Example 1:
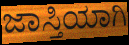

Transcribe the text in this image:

ಜಾಸ್ತಿಯಾಗಿ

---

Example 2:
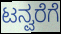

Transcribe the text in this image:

ಟನ್ವರೆಗೆ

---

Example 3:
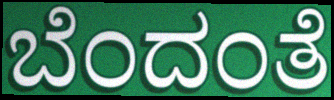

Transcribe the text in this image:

ಬೆಂದಂತೆ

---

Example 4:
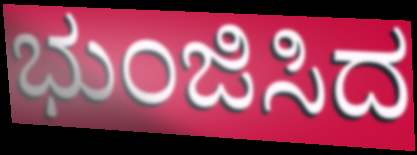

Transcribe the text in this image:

ಭುಂಜಿಸಿದ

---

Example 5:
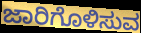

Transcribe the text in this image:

ಜಾರಿಗೊಳಿಸುವ